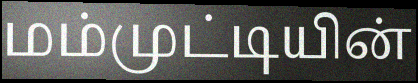
மம்முட்டியின்